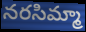
నరసిమ్మా